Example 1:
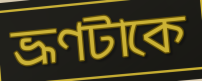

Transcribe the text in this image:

ভ্রূণটাকে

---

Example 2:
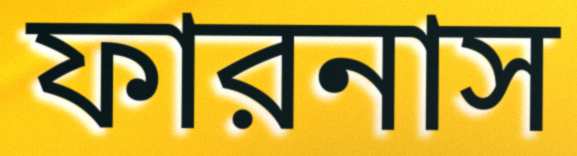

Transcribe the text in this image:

ফারনাস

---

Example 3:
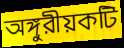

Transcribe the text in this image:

অঙ্গুরীয়কটি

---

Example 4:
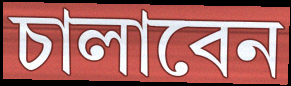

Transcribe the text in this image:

চালাবেন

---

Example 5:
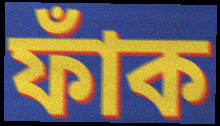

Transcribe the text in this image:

ফাঁক